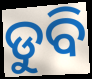
ଡୁବି